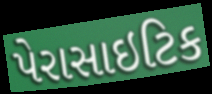
પેરાસાઇટિક